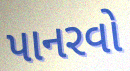
પાનરવો